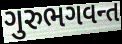
ગુરુભગવન્ત